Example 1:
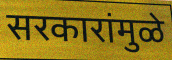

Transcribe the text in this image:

सरकारांमुळे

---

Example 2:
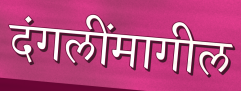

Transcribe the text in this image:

दंगलींमागील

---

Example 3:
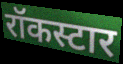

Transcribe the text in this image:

रॉकस्टार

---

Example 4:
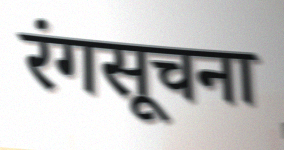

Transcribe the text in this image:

रंगसूचना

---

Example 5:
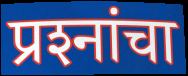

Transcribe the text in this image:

प्रश्‍नांचा